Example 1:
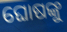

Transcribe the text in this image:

ଘୋଷଙ୍କୁ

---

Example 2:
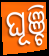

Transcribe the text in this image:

ଘୂଞ୍ଚି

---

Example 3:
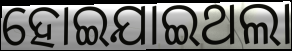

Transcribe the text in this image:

ହୋଇଯାଇଥଲା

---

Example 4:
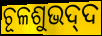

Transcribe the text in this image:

ଚୂଳଶୁଭଦ୍‍ଦ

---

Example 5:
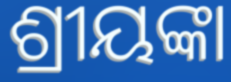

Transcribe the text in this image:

ଶ୍ରୀୟଙ୍କା